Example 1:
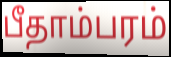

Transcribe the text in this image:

பீதாம்பரம்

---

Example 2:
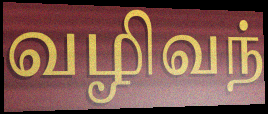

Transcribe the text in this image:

வழிவந்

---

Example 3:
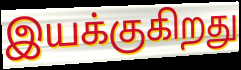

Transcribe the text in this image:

இயக்குகிறது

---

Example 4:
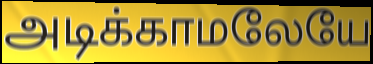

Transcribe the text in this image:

அடிக்காமலேயே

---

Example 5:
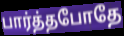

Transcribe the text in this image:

பார்த்தபோதே